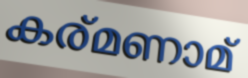
കര്മണാമ്